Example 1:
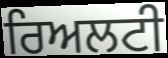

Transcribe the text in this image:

ਰਿਅਲਟੀ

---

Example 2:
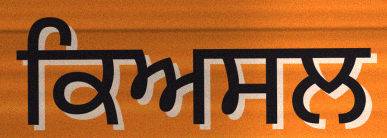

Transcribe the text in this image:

ਕਿਅਸਲ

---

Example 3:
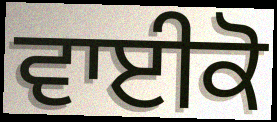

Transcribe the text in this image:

ਵਾਈਕੋ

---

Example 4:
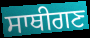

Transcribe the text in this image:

ਸਾਥੀਗਣ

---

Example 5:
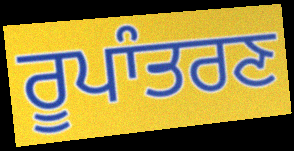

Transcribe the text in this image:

ਰੂਪਾੰਤਰਣ